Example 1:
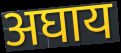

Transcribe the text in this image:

अघाय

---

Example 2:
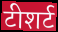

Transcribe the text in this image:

टीशर्ट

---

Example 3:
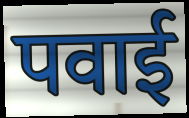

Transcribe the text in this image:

पवाई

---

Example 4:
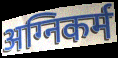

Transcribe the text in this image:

अग्निकर्म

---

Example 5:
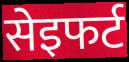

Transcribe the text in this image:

सेइफर्ट